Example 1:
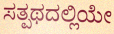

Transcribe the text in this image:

ಸತ್ಪಥದಲ್ಲಿಯೇ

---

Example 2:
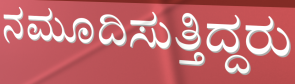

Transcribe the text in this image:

ನಮೂದಿಸುತ್ತಿದ್ದರು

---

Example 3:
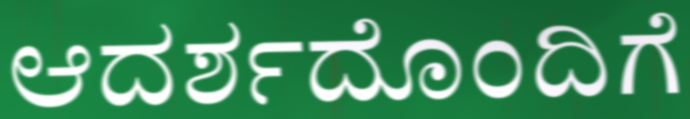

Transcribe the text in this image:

ಆದರ್ಶದೊಂದಿಗೆ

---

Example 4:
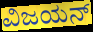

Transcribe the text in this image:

ವಿಜಯನ್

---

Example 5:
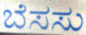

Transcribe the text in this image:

ಬೆಸಸು